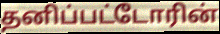
தனிப்பட்டோரின்